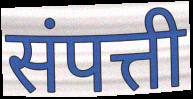
संपत्ती